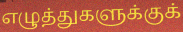
எழுத்துகளுக்குக்